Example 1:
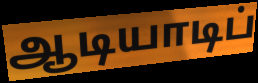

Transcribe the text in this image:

ஆடியாடிப்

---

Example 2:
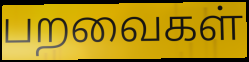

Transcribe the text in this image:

பறவைகள்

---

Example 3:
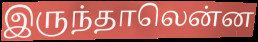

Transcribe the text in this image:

இருந்தாலென்ன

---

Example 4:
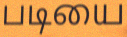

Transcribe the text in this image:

படியை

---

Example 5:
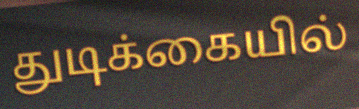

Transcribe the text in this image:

துடிக்கையில்